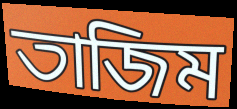
তাজিম